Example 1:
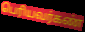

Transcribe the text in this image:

பெரியவர்கண்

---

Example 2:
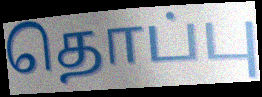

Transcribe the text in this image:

தொப்பு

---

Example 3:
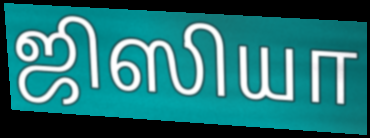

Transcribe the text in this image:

ஜிஸியா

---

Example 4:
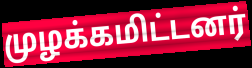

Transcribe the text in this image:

முழக்கமிட்டனர்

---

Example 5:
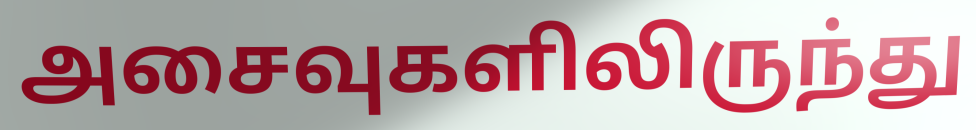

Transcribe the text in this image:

அசைவுகளிலிருந்து